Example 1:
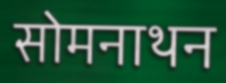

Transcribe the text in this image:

सोमनाथन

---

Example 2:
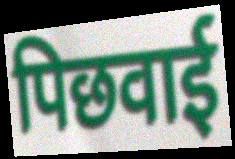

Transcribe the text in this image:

पिछवाई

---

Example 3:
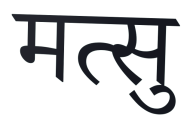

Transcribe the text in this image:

मत्सु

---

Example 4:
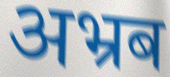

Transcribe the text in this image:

अभ्रब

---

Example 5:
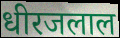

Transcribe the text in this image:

धीरजलाल